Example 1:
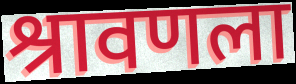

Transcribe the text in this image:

श्रावणला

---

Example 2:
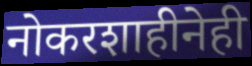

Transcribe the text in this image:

नोकरशाहीनेही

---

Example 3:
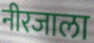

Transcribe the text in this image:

नीरजाला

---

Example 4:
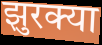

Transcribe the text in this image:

झुरक्या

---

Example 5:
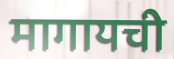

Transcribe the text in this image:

मागायची